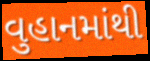
વુહાનમાંથી